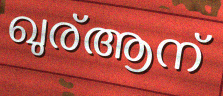
ഖുര്ആന്